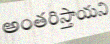
అంతరిస్తాయని